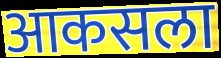
आकसला